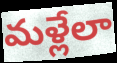
మళ్లేలా